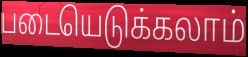
படையெடுக்கலாம்